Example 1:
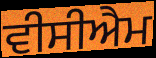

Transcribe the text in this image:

ਵੀਸੀਐਮ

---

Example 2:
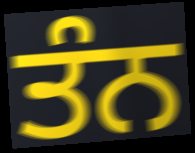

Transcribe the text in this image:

ਤੰਨ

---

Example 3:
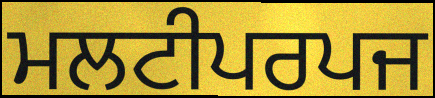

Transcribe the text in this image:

ਮਲਟੀਪਰਪਜ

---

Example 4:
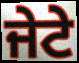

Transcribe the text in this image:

ਜੇਟੇ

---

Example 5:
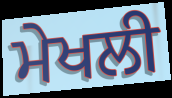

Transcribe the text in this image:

ਮੇਖਲੀ